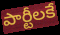
పార్టీలకే